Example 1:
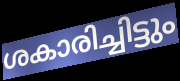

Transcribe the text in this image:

ശകാരിച്ചിട്ടും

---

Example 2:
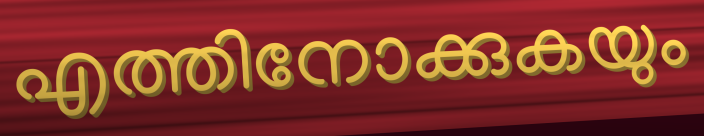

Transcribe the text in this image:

എത്തിനോക്കുകയും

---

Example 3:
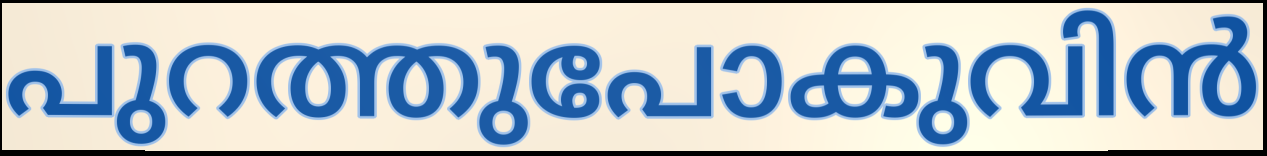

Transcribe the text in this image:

പുറത്തുപോകുവിൻ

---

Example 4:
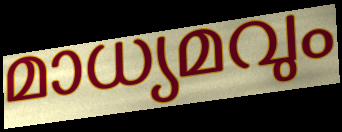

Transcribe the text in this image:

മാധ്യമവും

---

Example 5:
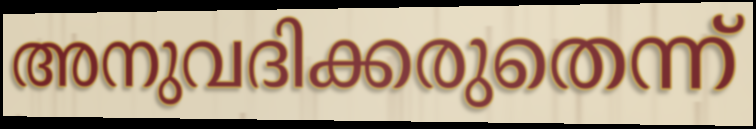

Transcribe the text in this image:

അനുവദിക്കരുതെന്ന്